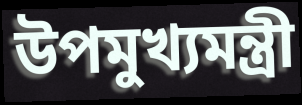
উপমুখ্যমন্ত্রী